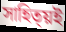
সাহিত্য়ই